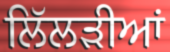
ਲਿੱਲੜੀਆਂ